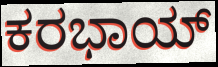
ಕರಭಾಯ್